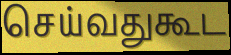
செய்வதுகூட